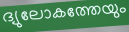
ദ്യുലോകത്തേയും